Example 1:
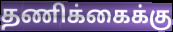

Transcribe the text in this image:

தணிக்கைக்கு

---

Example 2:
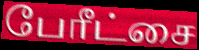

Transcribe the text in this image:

பேரீட்சை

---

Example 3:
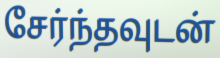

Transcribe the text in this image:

சேர்ந்தவுடன்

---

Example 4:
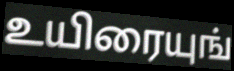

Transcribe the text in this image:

உயிரையுங்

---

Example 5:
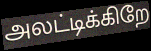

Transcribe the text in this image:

அலட்டிக்கிறே